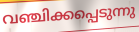
വഞ്ചിക്കപ്പെടുന്നു